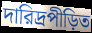
দারিদ্রপীড়িত